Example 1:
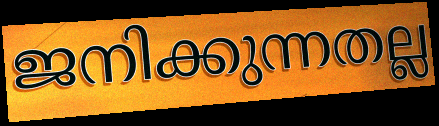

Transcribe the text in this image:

ജനിക്കുന്നതല്ല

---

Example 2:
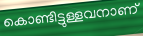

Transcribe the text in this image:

കൊണ്ടിട്ടുള്ളവനാണ്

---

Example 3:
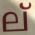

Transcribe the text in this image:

ല്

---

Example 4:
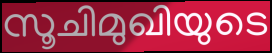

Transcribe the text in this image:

സൂചിമുഖിയുടെ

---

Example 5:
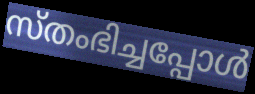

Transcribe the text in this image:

സ്തംഭിച്ചപ്പോൾ